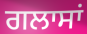
ਗਲਾਸਾਂ